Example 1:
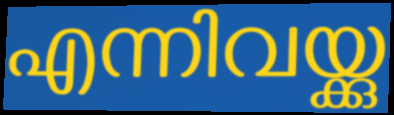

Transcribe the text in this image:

എന്നിവയ്ക്കു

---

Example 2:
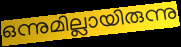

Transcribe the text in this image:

ഒന്നുമില്ലായിരുന്നു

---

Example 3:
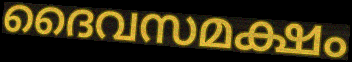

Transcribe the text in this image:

ദൈവസമക്ഷം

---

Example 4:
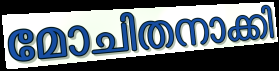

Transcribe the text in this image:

മോചിതനാക്കി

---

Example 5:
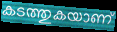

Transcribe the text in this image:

കടത്തുകയാണ്